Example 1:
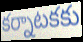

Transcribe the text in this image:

కర్నాటకకు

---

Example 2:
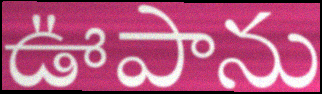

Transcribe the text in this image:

ఊపాను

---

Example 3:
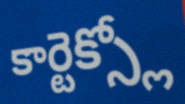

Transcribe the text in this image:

కార్టెక్స్లో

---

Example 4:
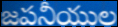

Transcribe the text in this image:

జపనీయుల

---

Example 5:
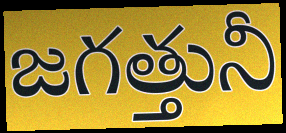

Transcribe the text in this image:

జగత్తునీ